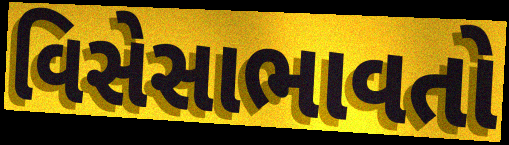
વિસેસાભાવતો